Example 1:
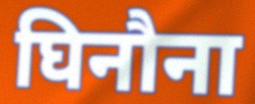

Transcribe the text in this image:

घिनौना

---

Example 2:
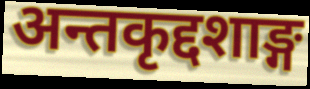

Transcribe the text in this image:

अन्तकृद्दशाङ्ग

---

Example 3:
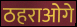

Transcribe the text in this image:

ठहराओगे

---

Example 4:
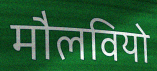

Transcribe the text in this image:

मौलवियो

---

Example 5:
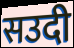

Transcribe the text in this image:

सउदी